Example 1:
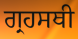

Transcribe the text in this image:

ਗ੍ਰਹਸਥੀ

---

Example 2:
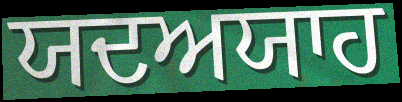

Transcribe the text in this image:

ਯਦਅਯਾਹ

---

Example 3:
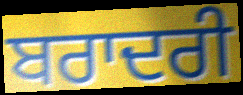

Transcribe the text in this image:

ਬਰਾਦਰੀ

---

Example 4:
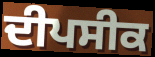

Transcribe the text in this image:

ਦੀਪਸੀਕ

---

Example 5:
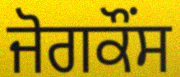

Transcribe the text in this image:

ਜੋਗਕੌਂਸ